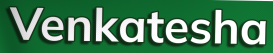
Venkatesha